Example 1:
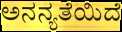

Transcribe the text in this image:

ಅನನ್ಯತೆಯಿದೆ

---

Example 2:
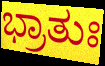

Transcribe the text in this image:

ಭ್ರಾತುಃ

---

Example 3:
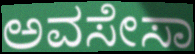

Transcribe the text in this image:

ಅವಸೇಸಾ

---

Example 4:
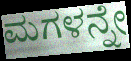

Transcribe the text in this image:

ಮಗಳನ್ನೇ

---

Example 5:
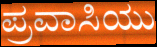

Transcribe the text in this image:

ಪ್ರವಾಸಿಯು